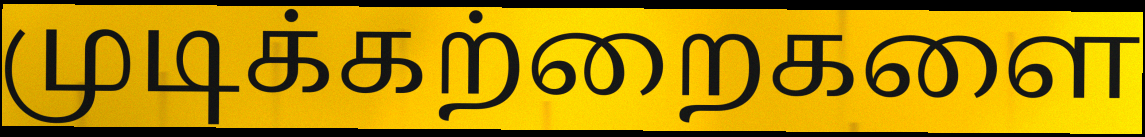
முடிக்கற்றைகளை